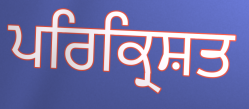
ਪਰਿਕ੍ਰਿਸ਼ਤ